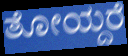
ತೋಯ್ದರೆ